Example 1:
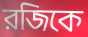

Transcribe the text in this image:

রজিকে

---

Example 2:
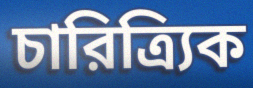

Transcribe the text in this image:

চারিত্র্যিক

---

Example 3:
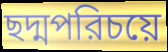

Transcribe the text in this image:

ছদ্মপরিচয়ে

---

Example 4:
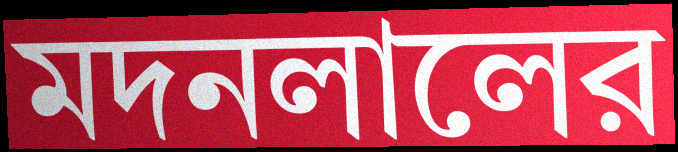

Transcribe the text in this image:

মদনলালের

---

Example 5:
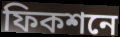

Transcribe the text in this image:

ফিকশনে